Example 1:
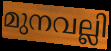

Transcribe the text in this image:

മുനവല്ലി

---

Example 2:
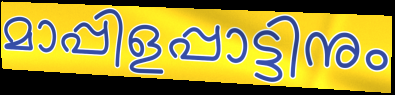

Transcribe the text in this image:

മാപ്പിളപ്പാട്ടിനും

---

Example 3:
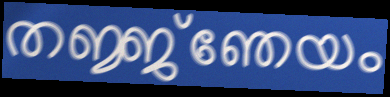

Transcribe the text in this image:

തജ്ജ്ഞേയം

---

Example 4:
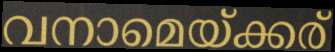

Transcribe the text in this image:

വനാമെയ്ക്കര്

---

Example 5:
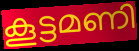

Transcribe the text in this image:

കൂട്ടമണി